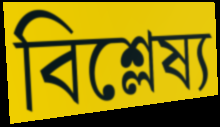
বিশ্লেষ্য